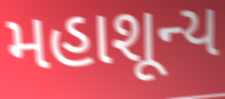
મહાશૂન્ય